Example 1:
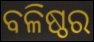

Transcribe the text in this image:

ବଳିଷ୍ଠର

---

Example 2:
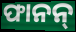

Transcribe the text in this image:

ଫାନନ୍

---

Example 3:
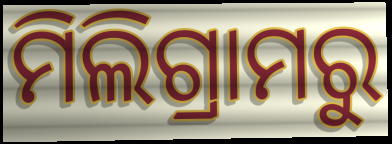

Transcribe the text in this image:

ମିଲିଗ୍ରାମରୁ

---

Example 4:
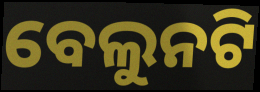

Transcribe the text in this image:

ବେଲୁନଟି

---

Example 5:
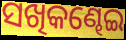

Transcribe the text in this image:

ସଖିକଣ୍ଢେଇ